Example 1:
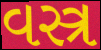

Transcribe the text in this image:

વસ્ત્ર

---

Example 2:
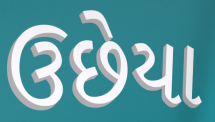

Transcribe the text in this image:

ઉછેયા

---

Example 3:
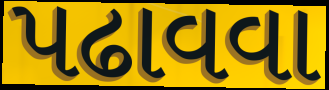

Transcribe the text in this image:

પઢાવવા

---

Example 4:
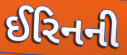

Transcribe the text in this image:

ઈરિનની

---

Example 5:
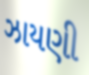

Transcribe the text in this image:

ઝાયણી